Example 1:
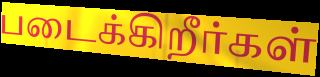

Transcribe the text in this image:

படைக்கிறீர்கள்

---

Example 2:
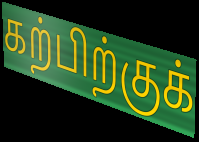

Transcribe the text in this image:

கற்பிற்குக்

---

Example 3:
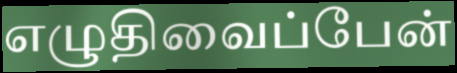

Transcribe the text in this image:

எழுதிவைப்பேன்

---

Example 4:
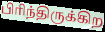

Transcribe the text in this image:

பிரிந்திருக்கிற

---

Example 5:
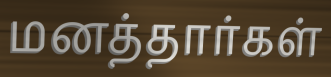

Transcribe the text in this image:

மனத்தார்கள்